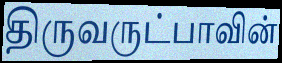
திருவருட்பாவின்